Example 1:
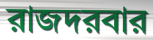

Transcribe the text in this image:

রাজদরবার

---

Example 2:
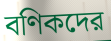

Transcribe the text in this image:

বণিকদের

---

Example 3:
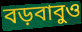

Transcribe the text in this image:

বড়বাবুও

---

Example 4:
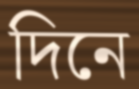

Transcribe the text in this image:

দিনে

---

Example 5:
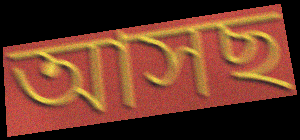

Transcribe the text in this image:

আসছ